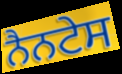
ਨੈਨਟੇਸ